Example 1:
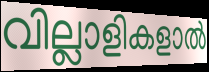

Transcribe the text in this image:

വില്ലാളികളാൽ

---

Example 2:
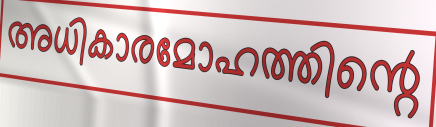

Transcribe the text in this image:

അധികാരമോഹത്തിന്റെ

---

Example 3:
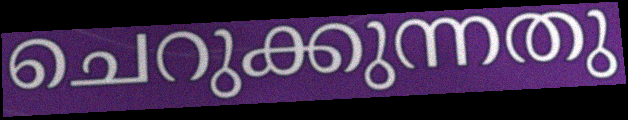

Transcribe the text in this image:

ചെറുക്കുന്നതു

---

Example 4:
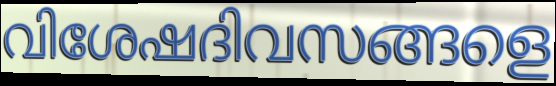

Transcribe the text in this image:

വിശേഷദിവസങ്ങളെ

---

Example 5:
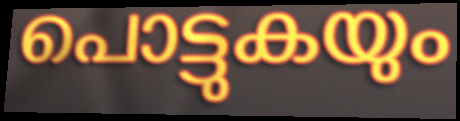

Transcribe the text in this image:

പൊട്ടുകയും